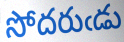
సోదరుఁడు